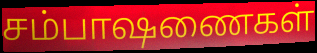
சம்பாஷணைகள்